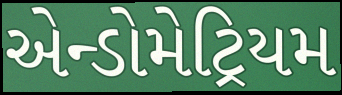
એન્ડોમેટ્રિયમ